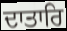
ਦਾਤਾਰਿ